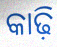
କାଢ଼ି